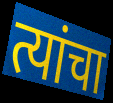
त्यांचा